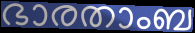
ഭാരതാംബ